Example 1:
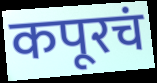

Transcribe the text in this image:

कपूरचं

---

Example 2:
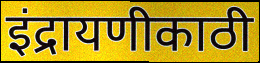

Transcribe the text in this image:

इंद्रायणीकाठी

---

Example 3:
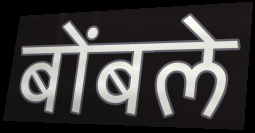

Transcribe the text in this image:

बोंबले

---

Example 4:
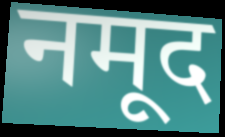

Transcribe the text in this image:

नमूद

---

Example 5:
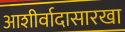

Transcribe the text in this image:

आशीर्वादासारखा